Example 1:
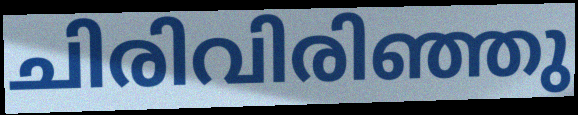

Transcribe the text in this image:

ചിരിവിരിഞ്ഞു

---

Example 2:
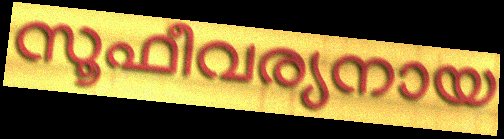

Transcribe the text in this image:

സൂഫീവര്യനായ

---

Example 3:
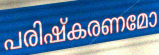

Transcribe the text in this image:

പരിഷ്കരണമോ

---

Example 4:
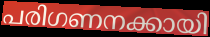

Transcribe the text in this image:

പരിഗണനക്കായി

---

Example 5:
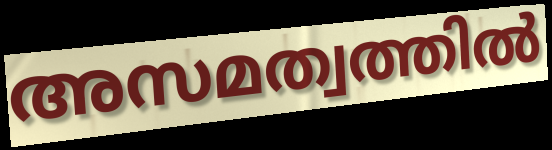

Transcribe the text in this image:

അസമത്വത്തിൽ